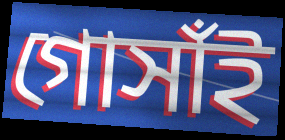
গোসাঁই